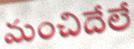
మంచిదేలే